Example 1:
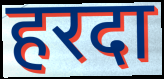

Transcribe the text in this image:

हरदा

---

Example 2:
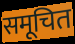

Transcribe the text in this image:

समूचित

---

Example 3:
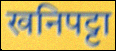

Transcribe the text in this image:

खनिपट्टा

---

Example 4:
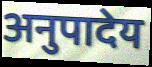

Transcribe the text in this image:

अनुपादेय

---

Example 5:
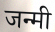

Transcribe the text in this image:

जन्मी